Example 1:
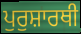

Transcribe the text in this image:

ਪੁਰੁਸ਼ਾਰਥੀ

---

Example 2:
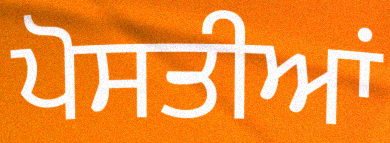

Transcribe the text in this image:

ਪੋਸਤੀਆਂ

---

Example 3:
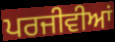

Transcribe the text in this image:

ਪਰਜੀਵੀਆਂ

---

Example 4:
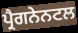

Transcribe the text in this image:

ਪ੍ਰੈਗਨੇਨਟਲ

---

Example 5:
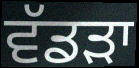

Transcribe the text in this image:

ਵੱਡਡ਼ਾ